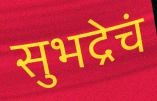
सुभद्रेचं